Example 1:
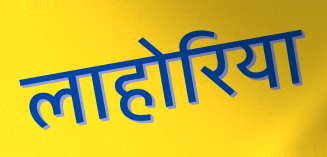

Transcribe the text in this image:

लाहोरिया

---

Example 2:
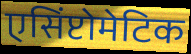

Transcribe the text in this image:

एसिंप्टोमेटिक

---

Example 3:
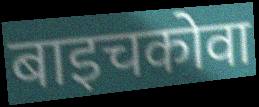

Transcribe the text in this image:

बाइचकोवा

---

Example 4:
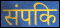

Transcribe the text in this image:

संपकि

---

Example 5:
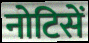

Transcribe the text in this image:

नोटिसें